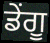
ਡੇਂਗੂ